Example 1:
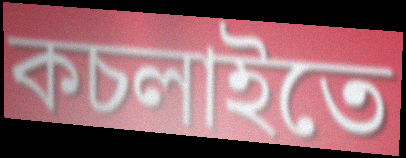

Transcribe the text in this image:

কচলাইতে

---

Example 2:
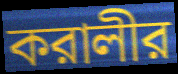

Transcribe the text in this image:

করালীর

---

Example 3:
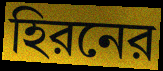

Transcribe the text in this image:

হিরনের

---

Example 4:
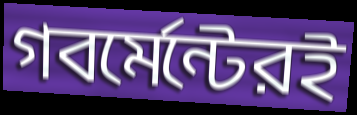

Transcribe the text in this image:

গবর্মেন্টেরই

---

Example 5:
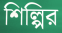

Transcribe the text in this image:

শিল্পির